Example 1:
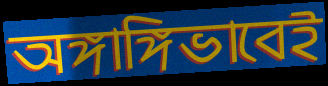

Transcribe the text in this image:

অঙ্গাঙ্গিভাবেই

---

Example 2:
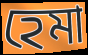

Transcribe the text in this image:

হেমা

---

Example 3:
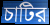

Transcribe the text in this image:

চাটির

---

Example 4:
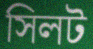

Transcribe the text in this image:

সিলট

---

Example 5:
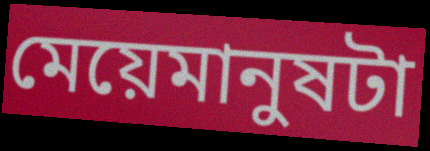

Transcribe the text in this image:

মেয়েমানুষটা